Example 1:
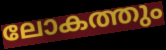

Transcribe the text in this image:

ലോകത്തും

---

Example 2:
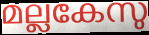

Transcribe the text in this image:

മല്ലകേസു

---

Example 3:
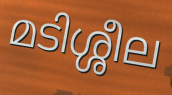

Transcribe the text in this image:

മടിശ്ശീല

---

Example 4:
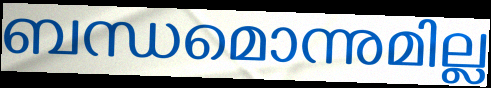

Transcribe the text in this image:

ബന്ധമൊന്നുമില്ല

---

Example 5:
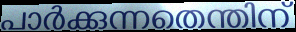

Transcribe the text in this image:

പാർക്കുന്നതെന്തിന്